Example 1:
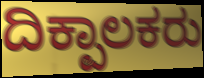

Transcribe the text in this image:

ದಿಕ್ಪಾಲಕರು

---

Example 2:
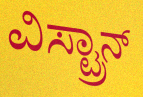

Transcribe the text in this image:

ವಿಸ್ಟ್ರಾನ್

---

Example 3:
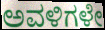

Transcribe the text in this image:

ಅವಳಿಗಳೇ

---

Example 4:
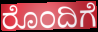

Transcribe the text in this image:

ರೊಂದಿಗೆ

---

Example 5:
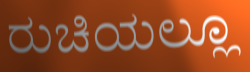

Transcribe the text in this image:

ರುಚಿಯಲ್ಲೂ